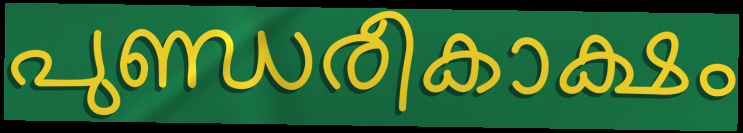
പുണ്ഡരീകാക്ഷം